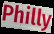
Philly